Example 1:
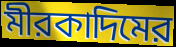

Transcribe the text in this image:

মীরকাদিমের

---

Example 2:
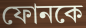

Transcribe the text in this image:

ফোনকে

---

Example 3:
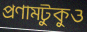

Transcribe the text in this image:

প্রণামটুকুও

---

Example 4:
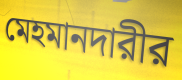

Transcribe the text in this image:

মেহমানদারীর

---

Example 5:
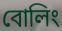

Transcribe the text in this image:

বোলিং